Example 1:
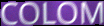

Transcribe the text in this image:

COLOM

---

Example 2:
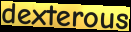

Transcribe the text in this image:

dexterous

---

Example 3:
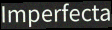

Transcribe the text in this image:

Imperfecta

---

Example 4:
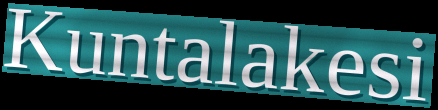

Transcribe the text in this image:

Kuntalakesi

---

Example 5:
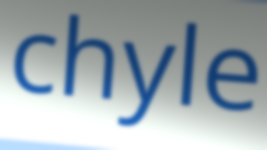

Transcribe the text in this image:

chyle